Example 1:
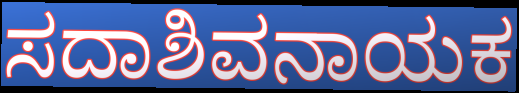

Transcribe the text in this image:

ಸದಾಶಿವನಾಯಕ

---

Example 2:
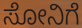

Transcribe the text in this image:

ಸೋನಿಗೆ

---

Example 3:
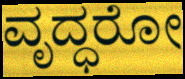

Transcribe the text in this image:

ವೃದ್ಧರೋ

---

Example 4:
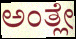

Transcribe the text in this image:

ಅಂತ್ಲೇ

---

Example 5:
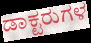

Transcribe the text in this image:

ಡಾಕ್ಟರುಗಳ